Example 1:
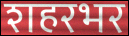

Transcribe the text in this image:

शहरभर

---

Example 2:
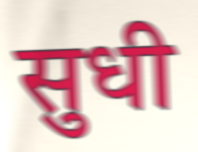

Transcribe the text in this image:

सुधी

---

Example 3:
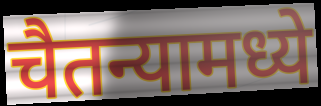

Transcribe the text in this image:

चैतन्यामध्ये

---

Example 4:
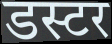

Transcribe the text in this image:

डस्टर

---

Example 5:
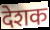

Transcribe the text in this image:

देशक